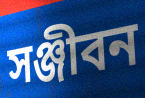
সঞ্জীবন